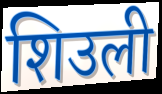
शिउली